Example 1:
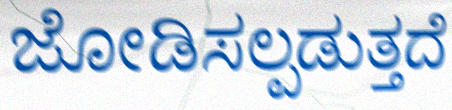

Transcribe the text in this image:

ಜೋಡಿಸಲ್ಪಡುತ್ತದೆ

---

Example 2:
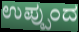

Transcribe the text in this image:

ಉಪ್ಪುಂದ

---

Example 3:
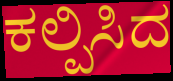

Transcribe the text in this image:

ಕಲ್ಪಿಸಿದ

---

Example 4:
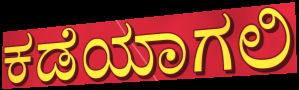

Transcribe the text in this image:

ಕಡೆಯಾಗಲಿ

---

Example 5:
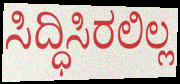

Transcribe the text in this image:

ಸಿದ್ಧಿಸಿರಲಿಲ್ಲ